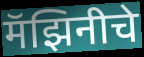
मॅझिनीचे